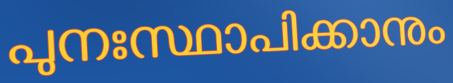
പുനഃസ്ഥാപിക്കാനും